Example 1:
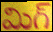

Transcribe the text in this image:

మిగ్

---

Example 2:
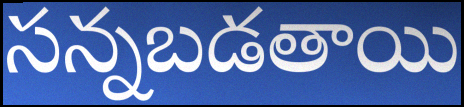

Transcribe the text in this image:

సన్నబడతాయి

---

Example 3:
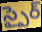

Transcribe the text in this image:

స్పైర్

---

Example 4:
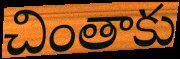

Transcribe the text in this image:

చింతాకు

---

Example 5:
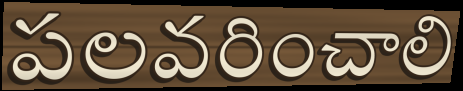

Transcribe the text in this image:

పలవరించాలి